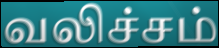
வலிச்சம்